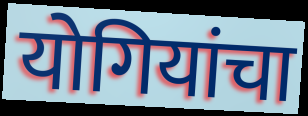
योगियांचा